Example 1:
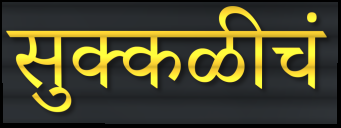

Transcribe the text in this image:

सुक्कळीचं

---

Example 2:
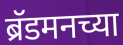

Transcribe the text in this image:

ब्रॅडमनच्या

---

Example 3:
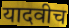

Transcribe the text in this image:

यादवीच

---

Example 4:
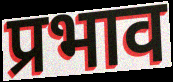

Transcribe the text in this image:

प्रभाव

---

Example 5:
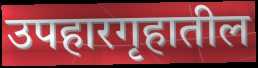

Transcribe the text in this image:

उपहारगृहातील